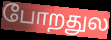
போறதுல